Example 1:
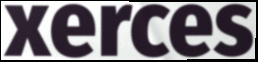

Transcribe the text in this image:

xerces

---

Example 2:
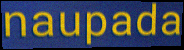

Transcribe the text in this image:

naupada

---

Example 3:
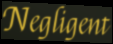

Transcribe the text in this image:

Negligent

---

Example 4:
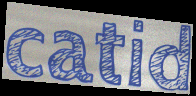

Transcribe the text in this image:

catid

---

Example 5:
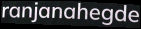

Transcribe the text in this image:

ranjanahegde